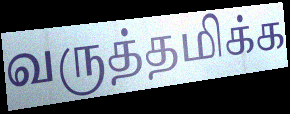
வருத்தமிக்க